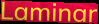
Laminar